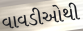
વાવડીઓથી